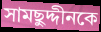
সামছুদ্দীনকে